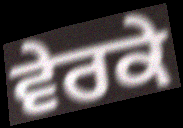
ਵੇਰਕੇ